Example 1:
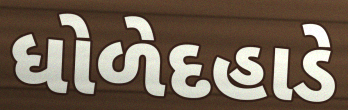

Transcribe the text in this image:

ધોળેદહાડે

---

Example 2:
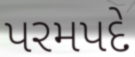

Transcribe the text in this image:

પરમપદે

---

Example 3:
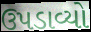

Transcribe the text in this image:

ઉપડાવ્યો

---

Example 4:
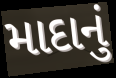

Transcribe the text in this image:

માદાનું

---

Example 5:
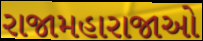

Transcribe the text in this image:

રાજામહારાજાઓ